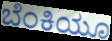
ಬೆಂಕಿಯೂ